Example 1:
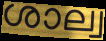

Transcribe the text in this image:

ശാല്വ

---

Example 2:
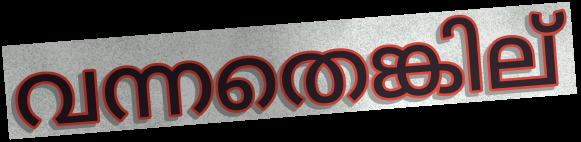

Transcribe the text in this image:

വന്നതെങ്കില്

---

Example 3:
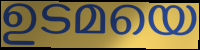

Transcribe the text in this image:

ഉടമയെ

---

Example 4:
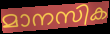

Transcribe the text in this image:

മാനസിക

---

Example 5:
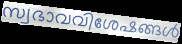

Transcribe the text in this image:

സ്വഭാവവിശേഷങ്ങൾ